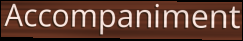
Accompaniment